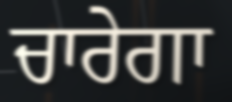
ਚਾਰੇਗਾ